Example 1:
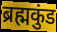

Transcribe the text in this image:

ब्रह्मकुंड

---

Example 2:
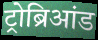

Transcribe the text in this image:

ट्रोब्रिआंड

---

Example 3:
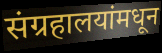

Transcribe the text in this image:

संग्रहालयांमधून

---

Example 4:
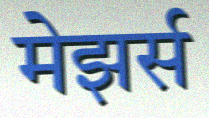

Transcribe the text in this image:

मेझर्स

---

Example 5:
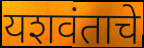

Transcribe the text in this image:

यशवंताचे